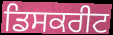
ਡਿਸਕਰੀਟ